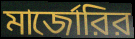
মার্জোরির